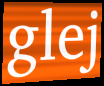
glej